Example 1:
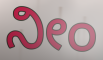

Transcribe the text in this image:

ನೀಂ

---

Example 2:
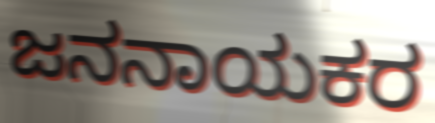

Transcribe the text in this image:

ಜನನಾಯಕರ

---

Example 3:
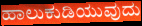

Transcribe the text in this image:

ಹಾಲುಕುಡಿಯುವುದು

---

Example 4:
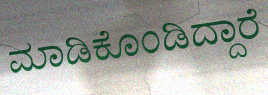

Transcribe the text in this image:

ಮಾಡಿಕೊಂಡಿದ್ದಾರೆ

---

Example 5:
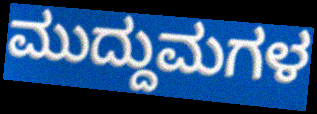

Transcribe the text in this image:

ಮುದ್ದುಮಗಳ